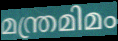
മന്ത്രമിമം